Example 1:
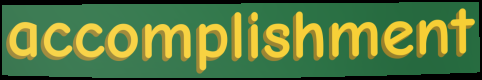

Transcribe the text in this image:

accomplishment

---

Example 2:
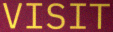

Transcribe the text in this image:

VISIT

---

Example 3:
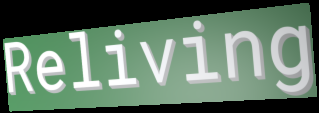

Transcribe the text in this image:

Reliving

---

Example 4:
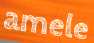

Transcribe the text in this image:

amele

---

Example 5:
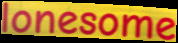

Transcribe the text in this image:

lonesome